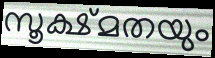
സൂക്ഷ്മതയും